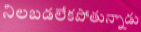
నిలబడలేకపోతున్నాడు